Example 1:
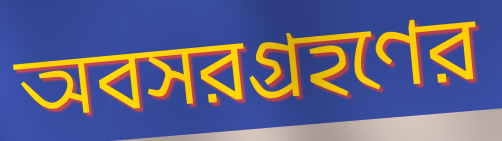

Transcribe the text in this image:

অবসরগ্রহণের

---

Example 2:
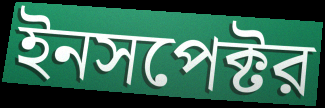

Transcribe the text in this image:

ইনসপেক্টর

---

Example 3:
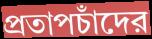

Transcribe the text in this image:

প্রতাপচাঁদের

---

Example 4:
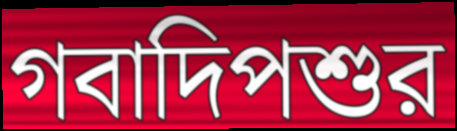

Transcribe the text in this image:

গবাদিপশুর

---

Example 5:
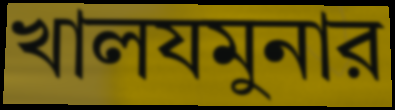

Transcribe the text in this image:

খালযমুনার